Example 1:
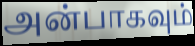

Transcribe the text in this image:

அன்பாகவும்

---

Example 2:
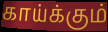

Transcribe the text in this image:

காய்க்கும்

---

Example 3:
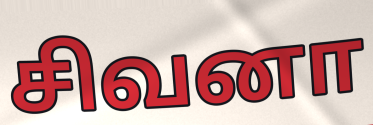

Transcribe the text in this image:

சிவனா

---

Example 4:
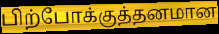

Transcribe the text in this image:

பிற்போக்குத்தனமான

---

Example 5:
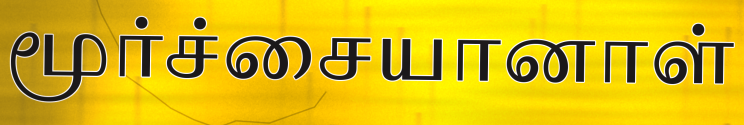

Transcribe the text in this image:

மூர்ச்சையானாள்